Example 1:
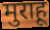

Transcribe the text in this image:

मुराहू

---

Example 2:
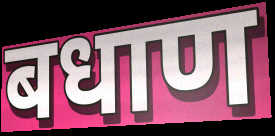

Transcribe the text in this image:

बधाण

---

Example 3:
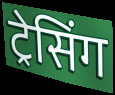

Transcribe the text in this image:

ट्रेसिंग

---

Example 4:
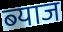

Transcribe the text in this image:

ब्‍याज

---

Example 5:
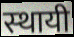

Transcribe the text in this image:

स्‍थायी